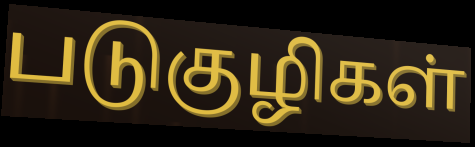
படுகுழிகள்